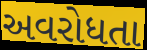
અવરોધતા